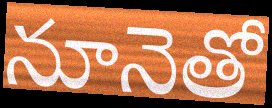
నూనెతో